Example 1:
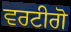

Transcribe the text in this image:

ਵਰਟੀਗੋ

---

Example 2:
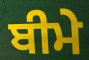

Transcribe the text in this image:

ਬੀਮੇ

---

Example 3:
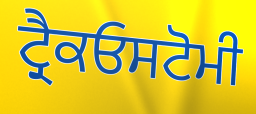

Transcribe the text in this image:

ਟ੍ਰੈਕਓਸਟੋਮੀ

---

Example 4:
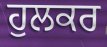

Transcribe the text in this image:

ਹੁਲਕਰ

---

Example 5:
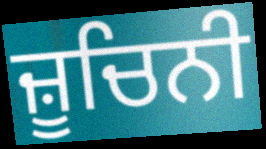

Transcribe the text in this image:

ਜ਼ੂਚਿਨੀ